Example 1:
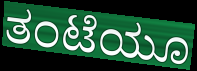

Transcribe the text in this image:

ತಂಟೆಯೂ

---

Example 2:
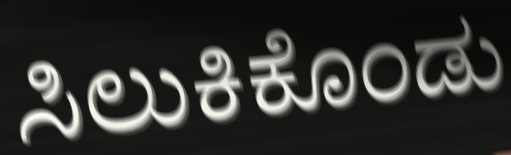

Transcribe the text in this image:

ಸಿಲುಕಿಕೊಂಡು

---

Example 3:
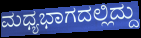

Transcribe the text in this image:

ಮಧ್ಯಭಾಗದಲ್ಲಿದ್ದು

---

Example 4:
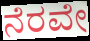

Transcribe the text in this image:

ನೆರವೇ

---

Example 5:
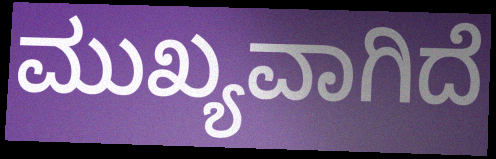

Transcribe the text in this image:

ಮುಖ್ಯವಾಗಿದೆ